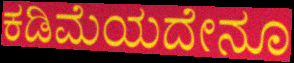
ಕಡಿಮೆಯದೇನೂ